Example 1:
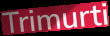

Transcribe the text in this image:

Trimurti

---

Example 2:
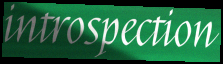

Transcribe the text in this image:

introspection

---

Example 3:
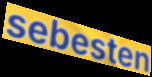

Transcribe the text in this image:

sebesten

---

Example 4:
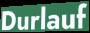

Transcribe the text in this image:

Durlauf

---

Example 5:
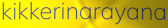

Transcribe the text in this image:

kikkerinarayana